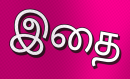
இதை